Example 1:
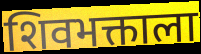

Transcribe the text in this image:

शिवभक्ताला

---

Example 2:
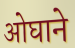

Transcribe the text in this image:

ओघाने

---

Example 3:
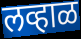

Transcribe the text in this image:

लव्हाळ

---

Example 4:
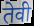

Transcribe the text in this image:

तेवी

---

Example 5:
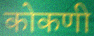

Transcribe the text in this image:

कोकणी